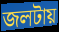
জলটায়